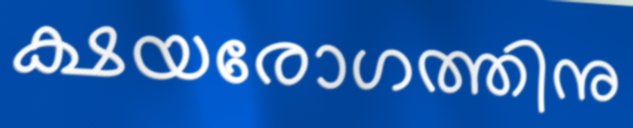
ക്ഷയരോഗത്തിനു